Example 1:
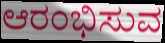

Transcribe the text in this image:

ಆರಂಭಿಸುವ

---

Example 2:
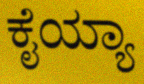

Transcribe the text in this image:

ಕೈಯ್ಯಾ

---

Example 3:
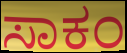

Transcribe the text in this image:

ಸಾಕಂ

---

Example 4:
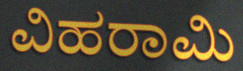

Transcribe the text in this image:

ವಿಹರಾಮಿ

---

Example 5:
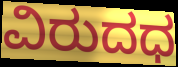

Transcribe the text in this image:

ವಿರುದಧ